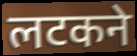
लटकने